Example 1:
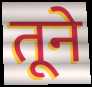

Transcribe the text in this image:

तूने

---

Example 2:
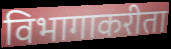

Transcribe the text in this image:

विभागाकरीता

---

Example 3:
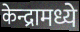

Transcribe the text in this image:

केन्द्रामध्ये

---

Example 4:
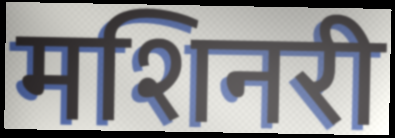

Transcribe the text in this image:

मशिनरी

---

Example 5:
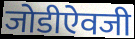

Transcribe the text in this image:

जोडीऐवजी